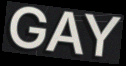
GAY